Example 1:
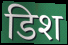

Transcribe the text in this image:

डिश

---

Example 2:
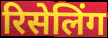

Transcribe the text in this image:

रिसेलिंग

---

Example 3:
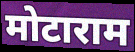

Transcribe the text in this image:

मोटाराम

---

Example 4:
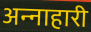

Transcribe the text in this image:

अन्नाहारी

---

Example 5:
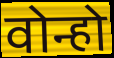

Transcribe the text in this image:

वोन्हो